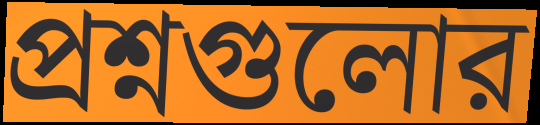
প্রশ্নগুলোর